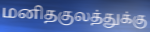
மனிதகுலத்துக்கு